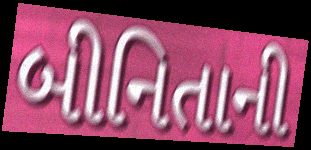
બીનિતાની